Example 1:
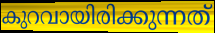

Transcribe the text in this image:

കുറവായിരിക്കുന്നത്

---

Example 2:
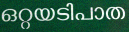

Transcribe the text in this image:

ഒറ്റയടിപാത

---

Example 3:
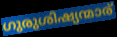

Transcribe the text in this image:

ഗുരുശിഷ്യന്മാര്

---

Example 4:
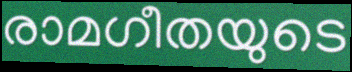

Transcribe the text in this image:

രാമഗീതയുടെ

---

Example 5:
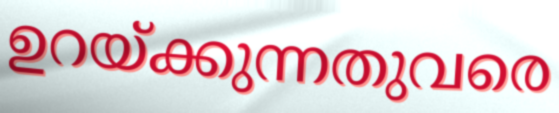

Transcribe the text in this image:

ഉറയ്ക്കുന്നതുവരെ